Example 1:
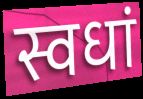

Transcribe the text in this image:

स्वधां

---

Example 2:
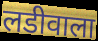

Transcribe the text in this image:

लडीवाला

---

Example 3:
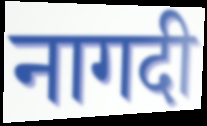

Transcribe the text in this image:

नागदी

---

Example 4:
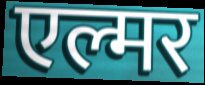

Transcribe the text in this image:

एल्मर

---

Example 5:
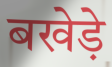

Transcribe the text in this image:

बखेड़े